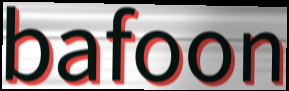
bafoon